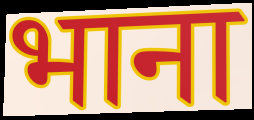
भाना